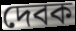
দেবক